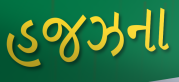
હજઝના